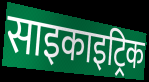
साइकाइट्रिक